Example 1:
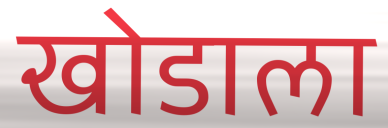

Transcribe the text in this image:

खोडाला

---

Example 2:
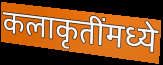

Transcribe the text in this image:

कलाकृतींमध्ये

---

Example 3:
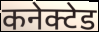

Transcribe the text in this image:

कनेक्टेड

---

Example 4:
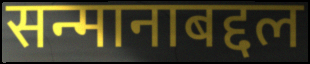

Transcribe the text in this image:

सन्मानाबद्दल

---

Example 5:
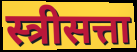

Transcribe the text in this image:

स्त्रीसत्ता